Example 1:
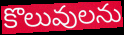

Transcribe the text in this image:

కొలువులను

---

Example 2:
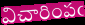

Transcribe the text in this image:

విచారింపఁ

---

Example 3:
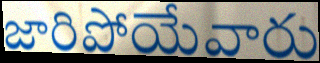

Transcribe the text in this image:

జారిపోయేవారు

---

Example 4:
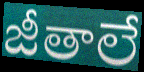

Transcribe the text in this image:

జీతాలే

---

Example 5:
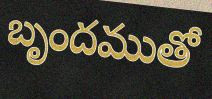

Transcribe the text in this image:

బృందముతో